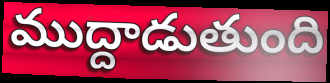
ముద్దాడుతుంది